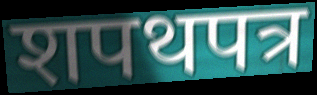
शपथपत्र